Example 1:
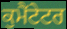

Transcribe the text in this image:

ਕੁਮੈਂਟੇਟਰ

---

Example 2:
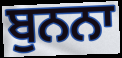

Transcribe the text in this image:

ਬੁਨਨਾ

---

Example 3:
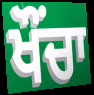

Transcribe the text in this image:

ਖੌੰਚਾ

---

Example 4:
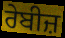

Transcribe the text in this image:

ਰੇਬੀਜ਼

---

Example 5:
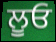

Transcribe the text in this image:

ਲੂਓ